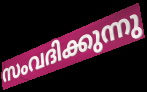
സംവദിക്കുന്നു